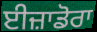
ਈਜ਼ਾਡੋਰਾ